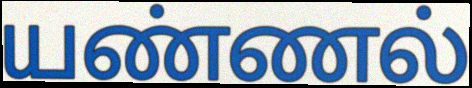
யண்ணல்